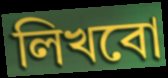
লিখবো